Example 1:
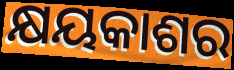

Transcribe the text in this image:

କ୍ଷୟକାଶର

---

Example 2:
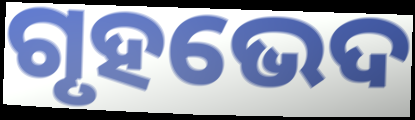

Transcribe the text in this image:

ଗୃହଭେଦ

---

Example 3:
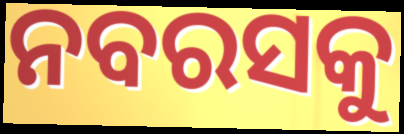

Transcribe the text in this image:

ନବରସକୁ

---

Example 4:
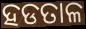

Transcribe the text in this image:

ହଡତାଳ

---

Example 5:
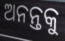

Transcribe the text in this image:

ଅନନ୍ତକୁ